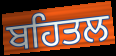
ਬਹਿਤਲ